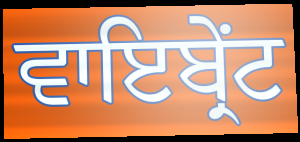
ਵਾਇਬ੍ਰੇਂਟ